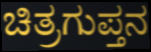
ಚಿತ್ರಗುಪ್ತನ